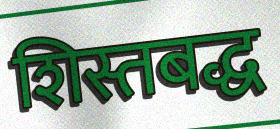
शिस्तबद्ध